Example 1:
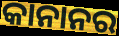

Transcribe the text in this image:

କାନାନର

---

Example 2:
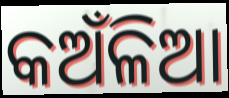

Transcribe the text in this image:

କଅଁଳିଆ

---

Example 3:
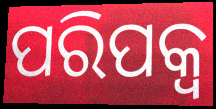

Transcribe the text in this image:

ପରିପକ୍ଵ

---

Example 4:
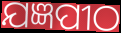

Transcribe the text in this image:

ଯଜ୍ଞପୀଠ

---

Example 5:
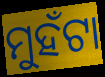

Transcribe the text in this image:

ମୁହଁଟା